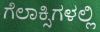
ಗೆಲಾಕ್ಸಿಗಳಲ್ಲಿ